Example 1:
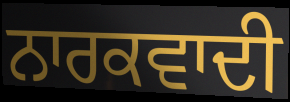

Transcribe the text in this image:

ਨਾਰਕਵਾਦੀ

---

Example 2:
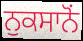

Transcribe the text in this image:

ਨੁਕਸਾਨੋਂ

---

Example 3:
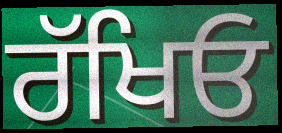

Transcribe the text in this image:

ਰੱਖਿਓ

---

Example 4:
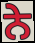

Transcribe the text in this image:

ਨੇ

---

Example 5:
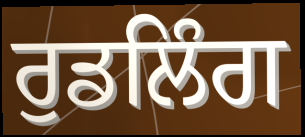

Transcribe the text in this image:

ਰੁਡਲਿੰਗ